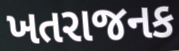
ખતરાજનક